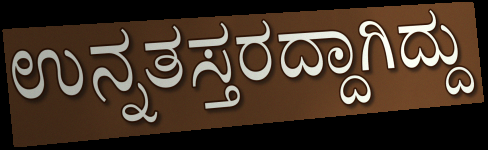
ಉನ್ನತಸ್ತರದ್ದಾಗಿದ್ದು